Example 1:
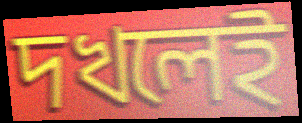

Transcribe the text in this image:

দখলেই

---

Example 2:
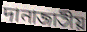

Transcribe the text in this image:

দানাজাতীয়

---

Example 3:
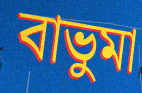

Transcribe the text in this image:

বাভুমা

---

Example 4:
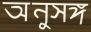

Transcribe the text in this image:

অনুসঙ্গ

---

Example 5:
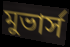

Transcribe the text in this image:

মুভার্স